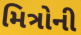
મિત્રોની